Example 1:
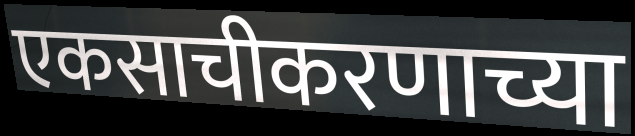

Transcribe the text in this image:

एकसाचीकरणाच्या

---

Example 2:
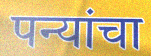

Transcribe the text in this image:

पन्यांचा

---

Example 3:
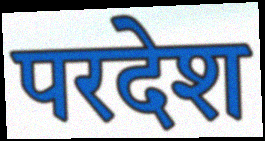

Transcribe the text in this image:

परदेश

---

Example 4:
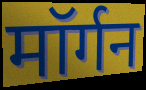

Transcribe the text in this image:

मॉर्गन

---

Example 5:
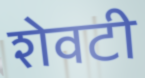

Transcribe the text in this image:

शेवटी